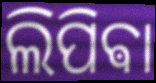
ଲିପିଵା